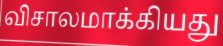
விசாலமாக்கியது